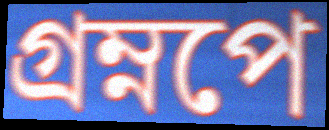
গ্রম্নপে